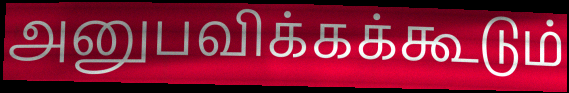
அனுபவிக்கக்கூடும்